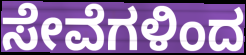
ಸೇವೆಗಳಿಂದ